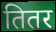
तितर